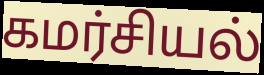
கமர்சியல்